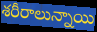
శరీరాలున్నాయి